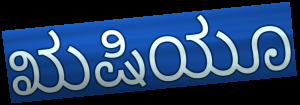
ಋಷಿಯೂ